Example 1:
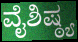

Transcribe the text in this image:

ವೈಶಿಷ್ಠ್ಯ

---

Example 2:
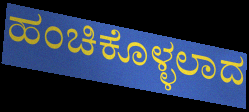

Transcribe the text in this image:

ಹಂಚಿಕೊಳ್ಳಲಾದ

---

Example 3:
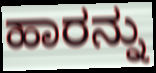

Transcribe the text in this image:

ಹಾರನ್ನು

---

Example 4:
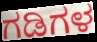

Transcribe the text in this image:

ಗಡಿಗಳ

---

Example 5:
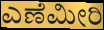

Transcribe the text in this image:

ಎಣೆಮೀರಿ